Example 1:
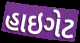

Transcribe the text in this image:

હાઇગેટ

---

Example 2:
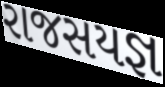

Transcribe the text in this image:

રાજસયજ્ઞ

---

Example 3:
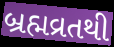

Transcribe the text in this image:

બ્રહ્મવ્રતથી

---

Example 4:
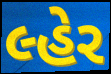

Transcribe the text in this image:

લ્હેર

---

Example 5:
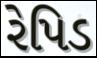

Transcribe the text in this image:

રેપિડ